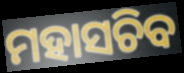
ମହାସଚିବ